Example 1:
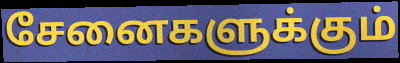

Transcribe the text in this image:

சேனைகளுக்கும்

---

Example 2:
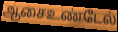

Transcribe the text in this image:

ஆசைஉண்டேல்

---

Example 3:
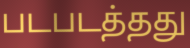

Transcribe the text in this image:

படபடத்தது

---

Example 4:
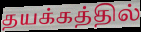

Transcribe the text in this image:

தயக்கத்தில்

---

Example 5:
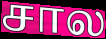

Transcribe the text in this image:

சால